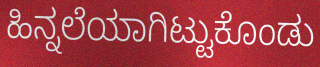
ಹಿನ್ನಲೆಯಾಗಿಟ್ಟುಕೊಂಡು